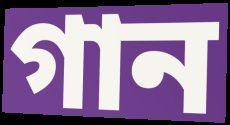
গান